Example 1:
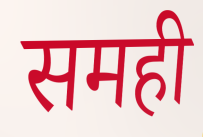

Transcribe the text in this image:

समही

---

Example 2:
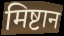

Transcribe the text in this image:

मिष्टान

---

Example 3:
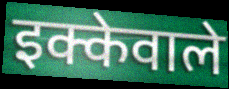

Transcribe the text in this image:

इक्केवाले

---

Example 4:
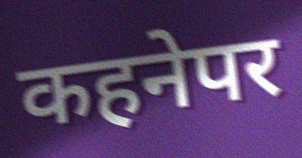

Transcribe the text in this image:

कहनेपर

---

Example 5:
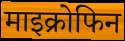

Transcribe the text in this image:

माइक्रोफिन